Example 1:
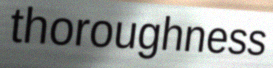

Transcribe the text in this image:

thoroughness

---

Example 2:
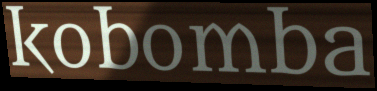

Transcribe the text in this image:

kobomba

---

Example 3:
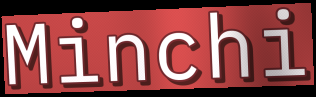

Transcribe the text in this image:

Minchi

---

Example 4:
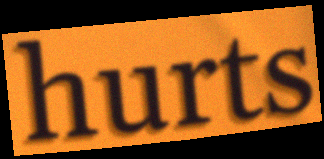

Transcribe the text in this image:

hurts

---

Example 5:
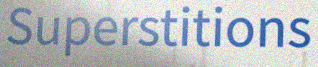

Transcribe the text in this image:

Superstitions